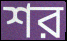
শর